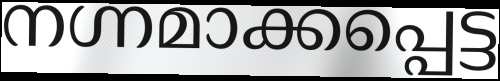
നഗ്നമാക്കപ്പെട്ട